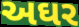
અઘર